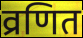
व्रणित